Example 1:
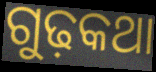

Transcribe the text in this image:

ଗୁଢ଼କଥା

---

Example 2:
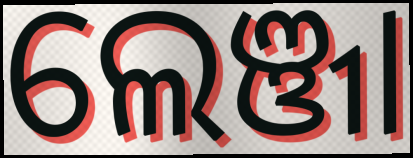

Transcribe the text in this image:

ଲେଞ୍ଜା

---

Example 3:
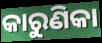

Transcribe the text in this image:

କାରୁଣିକା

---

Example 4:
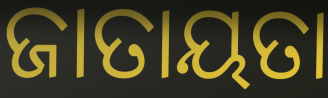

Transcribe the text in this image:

ଜାତାୟତା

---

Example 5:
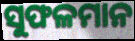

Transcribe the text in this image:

ସୁଫଳମାନ